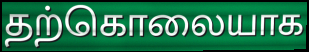
தற்கொலையாக